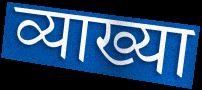
व्याख्या